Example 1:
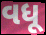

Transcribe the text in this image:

વધૂ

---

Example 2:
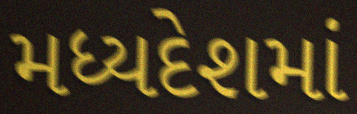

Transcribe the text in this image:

મધ્યદેશમાં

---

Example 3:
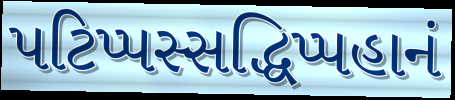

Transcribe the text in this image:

પટિપ્પસ્સદ્ધિપ્પહાનં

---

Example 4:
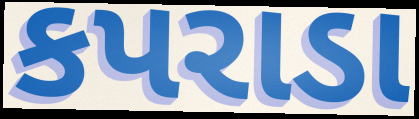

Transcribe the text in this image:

કપરાડા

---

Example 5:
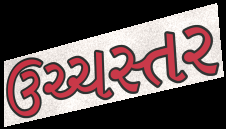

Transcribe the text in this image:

ઉચ્ચસ્તર